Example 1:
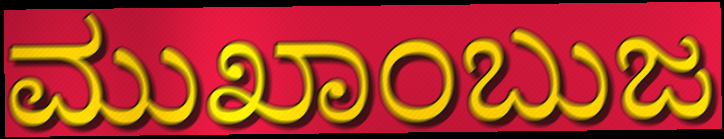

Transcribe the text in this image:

ಮುಖಾಂಬುಜ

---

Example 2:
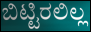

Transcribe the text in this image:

ಬಿಟ್ಟಿರಲಿಲ್ಲ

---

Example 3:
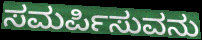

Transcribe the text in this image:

ಸಮರ್ಪಿಸುವನು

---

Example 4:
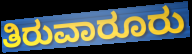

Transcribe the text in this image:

ತಿರುವಾರೂರು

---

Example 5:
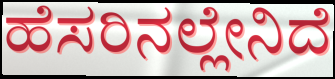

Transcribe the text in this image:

ಹೆಸರಿನಲ್ಲೇನಿದೆ